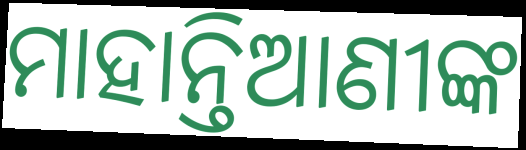
ମାହାନ୍ତିଆଣୀଙ୍କ